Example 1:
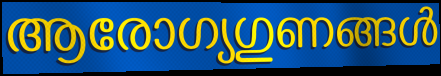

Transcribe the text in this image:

ആരോഗ്യഗുണങ്ങൾ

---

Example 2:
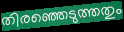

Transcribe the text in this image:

തിരഞ്ഞെടുത്തതും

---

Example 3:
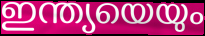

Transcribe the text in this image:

ഇന്ത്യയെയും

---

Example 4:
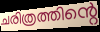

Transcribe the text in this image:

ചരിത്രത്തിന്റെ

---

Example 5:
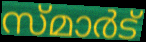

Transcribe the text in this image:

സ്മാർട്